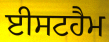
ਈਸਟਹੈਮ